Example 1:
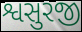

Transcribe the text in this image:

શ્વસુરજી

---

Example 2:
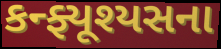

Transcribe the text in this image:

કન્ફ્યૂશ્યસના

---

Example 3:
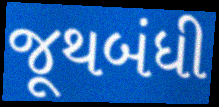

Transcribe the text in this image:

જૂથબંધી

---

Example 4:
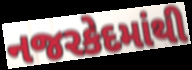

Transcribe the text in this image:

નજરકેદમાંથી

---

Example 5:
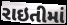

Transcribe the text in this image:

રાઇતીમાં